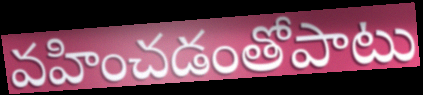
వహించడంతోపాటు